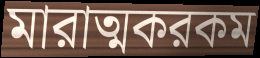
মারাত্মকরকম